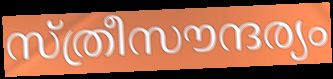
സ്ത്രീസൗന്ദര്യം